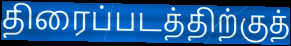
திரைப்படத்திற்குத்